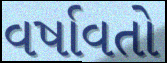
વર્ષાવતો